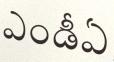
ఎండీఏ